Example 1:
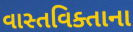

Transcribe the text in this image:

વાસ્તવિક્તાના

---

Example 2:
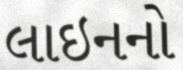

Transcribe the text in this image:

લાઇનનો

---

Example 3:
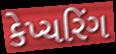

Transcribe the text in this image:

કેપ્ચરિંગ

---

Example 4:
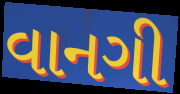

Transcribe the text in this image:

વાનગી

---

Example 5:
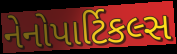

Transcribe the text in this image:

નેનોપાર્ટિકલ્સ